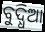
ବୁଦ୍ଧିଆ